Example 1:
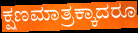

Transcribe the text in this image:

ಕ್ಷಣಮಾತ್ರಕ್ಕಾದರೂ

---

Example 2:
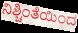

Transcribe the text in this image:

ನಿಶ್ಚಿಂತೆಯಿಂದ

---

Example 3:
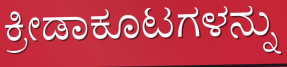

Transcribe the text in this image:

ಕ್ರೀಡಾಕೂಟಗಳನ್ನು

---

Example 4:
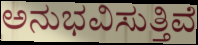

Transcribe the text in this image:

ಅನುಭವಿಸುತ್ತಿವೆ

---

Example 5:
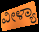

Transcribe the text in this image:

ವೀಳ್ಯಾ